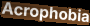
Acrophobia